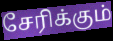
சேரிக்கும்